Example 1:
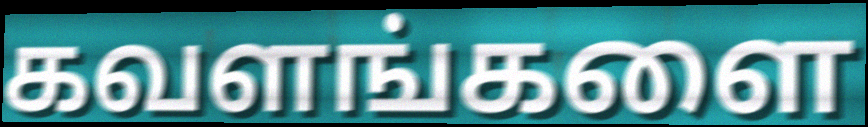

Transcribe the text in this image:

கவளங்களை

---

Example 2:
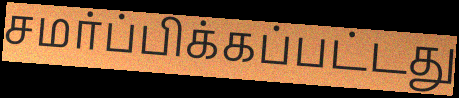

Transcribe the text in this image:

சமர்ப்பிக்கப்பட்டது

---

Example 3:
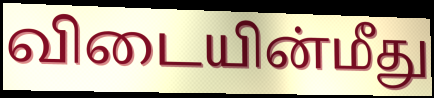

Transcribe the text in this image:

விடையின்மீது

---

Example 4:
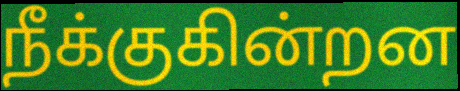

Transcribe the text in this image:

நீக்குகின்றன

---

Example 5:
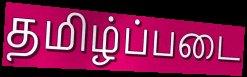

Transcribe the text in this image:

தமிழ்ப்படை